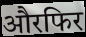
औरफिर